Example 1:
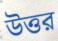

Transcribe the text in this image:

উত্তর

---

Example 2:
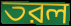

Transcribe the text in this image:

তরল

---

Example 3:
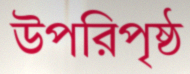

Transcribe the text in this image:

উপরিপৃষ্ঠ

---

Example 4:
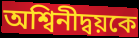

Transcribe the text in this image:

অশ্বিনীদ্বয়কে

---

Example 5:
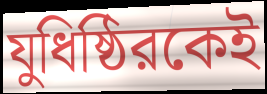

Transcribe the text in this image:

যুধিষ্ঠিরকেই